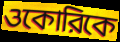
ওকোরিকে